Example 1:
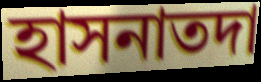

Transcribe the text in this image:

হাসনাতদা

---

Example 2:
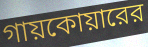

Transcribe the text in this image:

গায়কোয়ারের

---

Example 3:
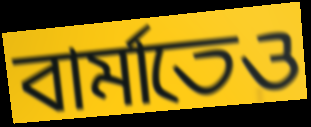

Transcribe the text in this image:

বার্মাতেও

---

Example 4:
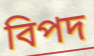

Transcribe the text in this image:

বিপদ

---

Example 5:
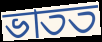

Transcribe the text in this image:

ভাতত